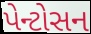
પેન્ટોસન